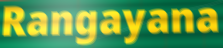
Rangayana